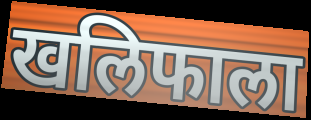
खलिफाला